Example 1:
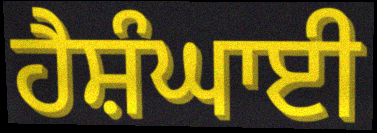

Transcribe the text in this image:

ਹੈਸ਼ੰਘਾਈ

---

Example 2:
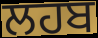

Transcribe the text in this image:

ਲਹਬ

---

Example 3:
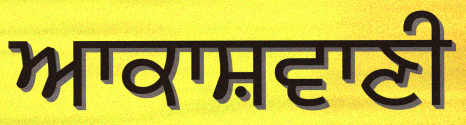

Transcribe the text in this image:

ਆਕਾਸ਼ਵਾਣੀ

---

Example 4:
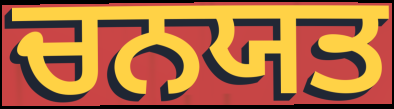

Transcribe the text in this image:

ਚਨਯਤ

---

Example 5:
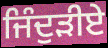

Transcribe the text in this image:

ਜਿੰਦੁੜੀਏ